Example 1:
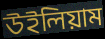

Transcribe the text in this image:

উইলিয়াম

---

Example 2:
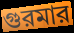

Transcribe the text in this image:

গুরমার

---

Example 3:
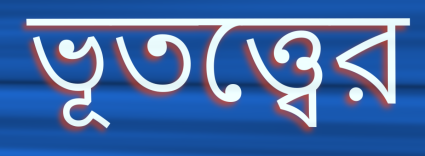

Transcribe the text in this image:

ভূতত্ত্বের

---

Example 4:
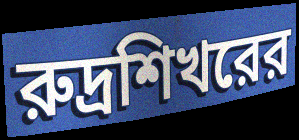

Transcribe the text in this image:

রুদ্রশিখরের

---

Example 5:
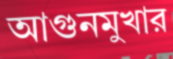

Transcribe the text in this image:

আগুনমুখার